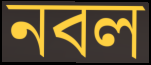
নবল